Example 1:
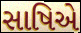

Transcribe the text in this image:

સાષિએ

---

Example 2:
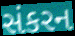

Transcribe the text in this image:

સંકરન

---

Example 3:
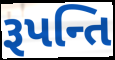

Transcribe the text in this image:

રૂપન્તિ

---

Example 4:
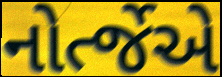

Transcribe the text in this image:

નોર્ત્જેએ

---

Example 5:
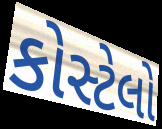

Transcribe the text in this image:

કોસ્ટેલો